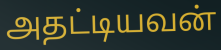
அதட்டியவன்